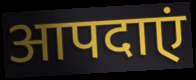
आपदाएं